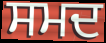
ਸਮਦ